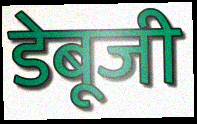
डेबूजी